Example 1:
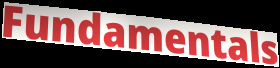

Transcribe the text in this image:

Fundamentals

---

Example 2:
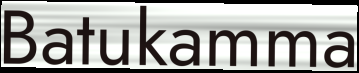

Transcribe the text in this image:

Batukamma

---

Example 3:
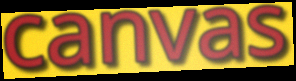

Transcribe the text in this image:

canvas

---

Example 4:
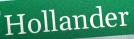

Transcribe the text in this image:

Hollander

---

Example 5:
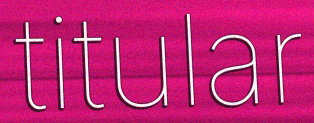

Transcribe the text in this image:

titular